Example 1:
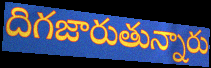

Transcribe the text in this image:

దిగజారుతున్నారు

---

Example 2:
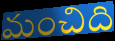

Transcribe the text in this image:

మంచిది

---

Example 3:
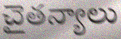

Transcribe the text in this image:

చైతన్యాలు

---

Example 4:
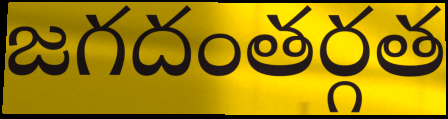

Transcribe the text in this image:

జగదంతర్గత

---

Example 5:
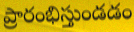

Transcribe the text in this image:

ప్రారంభిస్తుండడం